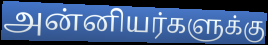
அன்னியர்களுக்கு